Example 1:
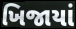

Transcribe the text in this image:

ખિજાયાં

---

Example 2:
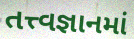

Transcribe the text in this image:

તત્ત્વજ્ઞાનમાં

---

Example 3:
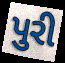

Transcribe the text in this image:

પુરી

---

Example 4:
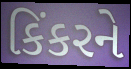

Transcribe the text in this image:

કિંકરને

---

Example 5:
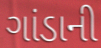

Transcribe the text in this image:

ગાંડાની